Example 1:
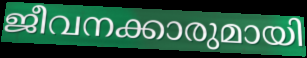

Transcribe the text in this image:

ജീവനക്കാരുമായി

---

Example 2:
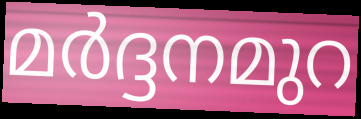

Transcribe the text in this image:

മർദ്ദനമുറ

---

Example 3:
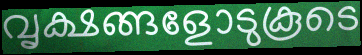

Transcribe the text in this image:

വൃക്ഷങ്ങളോടുകൂടെ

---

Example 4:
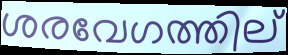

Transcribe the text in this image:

ശരവേഗത്തില്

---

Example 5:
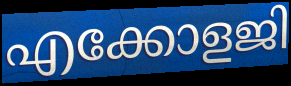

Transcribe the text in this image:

എക്കോളജി